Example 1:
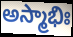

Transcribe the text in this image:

అస్మాభిః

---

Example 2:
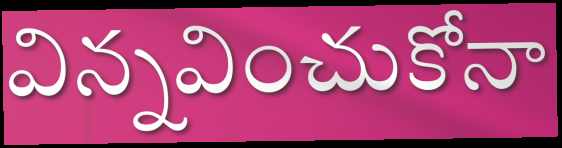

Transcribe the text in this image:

విన్నవించుకోనా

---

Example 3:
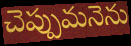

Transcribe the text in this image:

చెప్పుమనెను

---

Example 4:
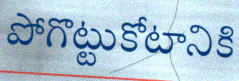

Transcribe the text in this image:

పోగొట్టుకోటానికి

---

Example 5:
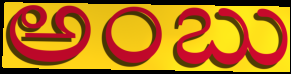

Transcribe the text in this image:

అంబు